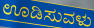
ಊಡಿಸುವಳು